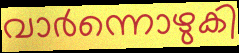
വാർന്നൊഴുകി